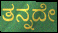
ತನ್ನದೇ